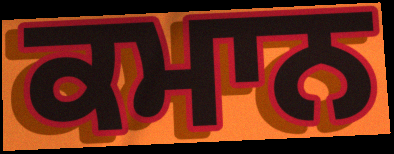
ਕਮਾਨ